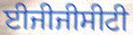
ਈਜੀਜੀਸੀਟੀ